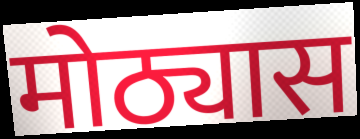
मोठ्यास